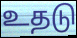
உதடு